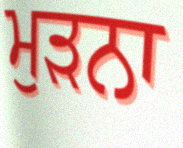
ਮੁਡ਼ਨਾ